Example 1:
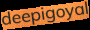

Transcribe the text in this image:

deepigoyal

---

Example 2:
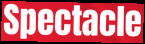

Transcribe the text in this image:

Spectacle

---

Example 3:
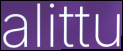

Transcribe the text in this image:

alittu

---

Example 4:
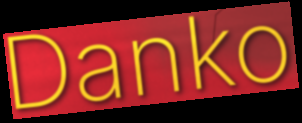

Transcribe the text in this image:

Danko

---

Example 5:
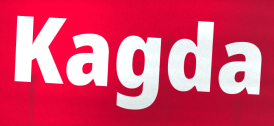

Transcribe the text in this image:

Kagda